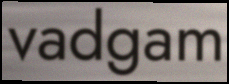
vadgam